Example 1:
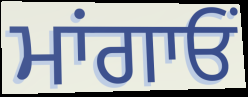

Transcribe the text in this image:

ਮਾਂਗਾਓਂ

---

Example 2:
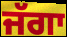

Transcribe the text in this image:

ਜੱਗਾ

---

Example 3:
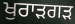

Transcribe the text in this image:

ਖੁਰਾੜਗੜ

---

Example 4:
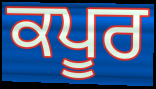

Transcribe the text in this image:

ਕਪੂਰ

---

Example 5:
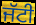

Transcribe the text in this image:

ਜੱਟੀ